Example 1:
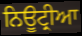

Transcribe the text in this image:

ਨਿਊਟ੍ਰੀਆ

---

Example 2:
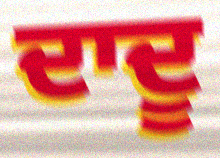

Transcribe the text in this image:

ਦਾਦੂ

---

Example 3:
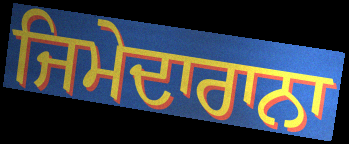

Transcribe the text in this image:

ਜਿਮੇਦਾਰਾਨਾ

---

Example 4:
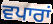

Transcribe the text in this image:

ਵਪਾਰਾਂ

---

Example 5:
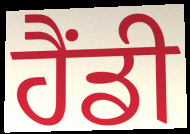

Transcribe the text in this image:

ਹੈਂਡੀ